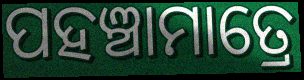
ପହଞ୍ଚାମାତ୍ରେ